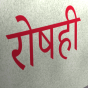
रोषही